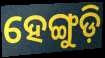
ହେଙ୍ଗୁଡ଼ି